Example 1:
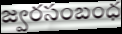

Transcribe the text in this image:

జ్వరసంబంధ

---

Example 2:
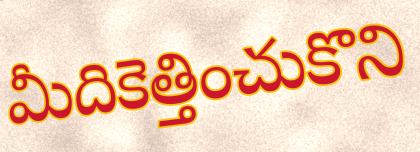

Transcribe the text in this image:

మీదికెత్తించుకొని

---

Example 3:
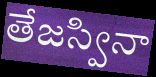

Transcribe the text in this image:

తేజస్వినా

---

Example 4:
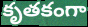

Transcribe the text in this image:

కృతకంగా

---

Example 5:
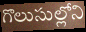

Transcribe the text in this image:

గొలుసుల్లోని